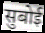
सुबोई